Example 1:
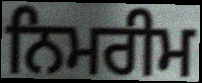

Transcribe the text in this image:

ਨਿਮਰੀਮ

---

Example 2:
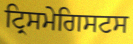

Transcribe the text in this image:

ਟ੍ਰਿਸਮੇਗਿਸਟਸ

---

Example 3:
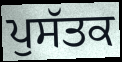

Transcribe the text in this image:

ਪੁਸੱਤਕ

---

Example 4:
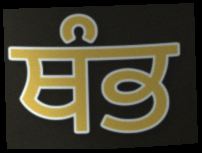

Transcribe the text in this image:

ਥੰਭ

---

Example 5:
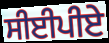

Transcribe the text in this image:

ਸੀਈਪੀਏ